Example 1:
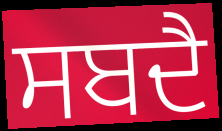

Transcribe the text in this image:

ਸਬਦੈ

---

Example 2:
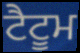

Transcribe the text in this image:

ਟੈਟੂਮ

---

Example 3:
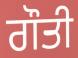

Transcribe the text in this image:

ਗੌਤੀ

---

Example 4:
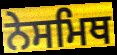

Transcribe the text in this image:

ਨੇਸਮਿਥ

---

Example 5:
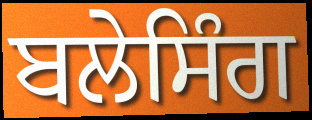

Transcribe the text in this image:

ਬਲੇਸਿੰਗ